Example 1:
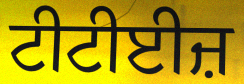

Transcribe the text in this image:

ਟੀਟੀਈਜ਼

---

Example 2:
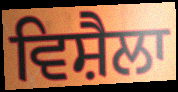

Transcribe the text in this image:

ਵਿਸ਼ੈਲਾ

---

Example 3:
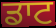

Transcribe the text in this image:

ਡਾਟ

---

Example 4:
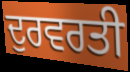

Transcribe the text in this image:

ਦੁਰਵਰਤੀ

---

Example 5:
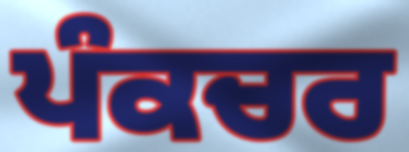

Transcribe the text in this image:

ਪੰਕਚਰ